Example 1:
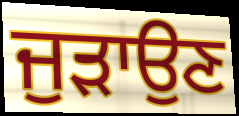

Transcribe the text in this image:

ਜੁੜਾਉਣ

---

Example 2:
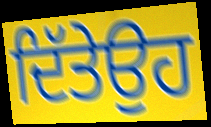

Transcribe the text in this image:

ਦਿੱਤੇਉਹ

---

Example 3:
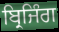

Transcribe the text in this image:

ਬ੍ਰਿਜਿੰਗ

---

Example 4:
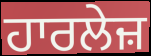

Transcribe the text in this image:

ਹਾਰਲੇਜ਼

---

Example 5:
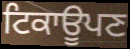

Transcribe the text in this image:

ਟਿਕਾਊਪਣ